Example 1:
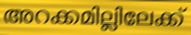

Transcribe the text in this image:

അറക്കമില്ലിലേക്ക്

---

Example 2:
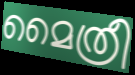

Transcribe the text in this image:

മൈത്രീ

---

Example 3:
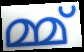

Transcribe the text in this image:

മ്മ്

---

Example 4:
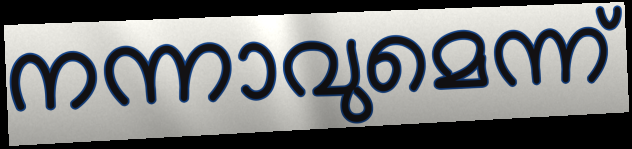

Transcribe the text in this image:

നന്നാവുമെന്ന്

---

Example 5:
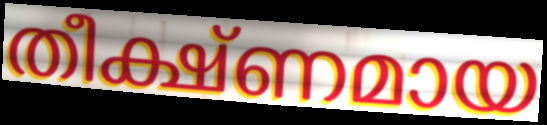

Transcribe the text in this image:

തീക്ഷ്‌ണമായ